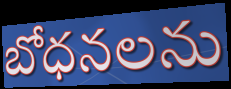
బోధనలను